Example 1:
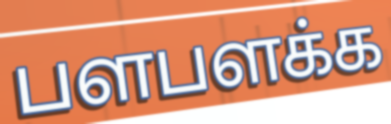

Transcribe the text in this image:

பளபளக்க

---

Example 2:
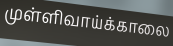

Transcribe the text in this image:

முள்ளிவாய்க்காலை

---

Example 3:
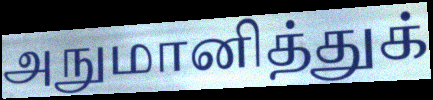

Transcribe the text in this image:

அநுமானித்துக்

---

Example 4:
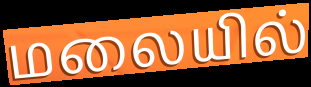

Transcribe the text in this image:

மலையில்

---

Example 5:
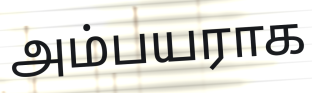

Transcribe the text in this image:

அம்பயராக